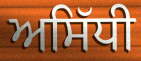
ਅਸਿੱਧੀ